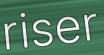
riser